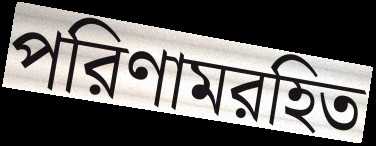
পরিণামরহিত